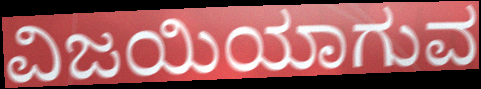
ವಿಜಯಿಯಾಗುವ